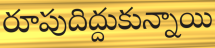
రూపుదిద్దుకున్నాయి